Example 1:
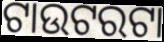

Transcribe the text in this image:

ଟାଉଟରଟା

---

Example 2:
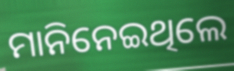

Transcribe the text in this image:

ମାନିନେଇଥିଲେ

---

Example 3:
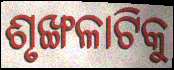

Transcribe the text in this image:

ଶୃଙ୍ଖଳାଟିକୁ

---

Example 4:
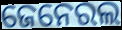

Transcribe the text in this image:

ଜେନେରଲ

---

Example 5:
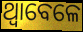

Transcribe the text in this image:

ଥ୍ବାବେଳେ